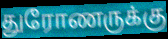
துரோணருக்கு